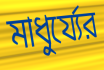
মাধুর্য্যের